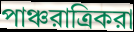
পাঞ্চরাত্রিকরা